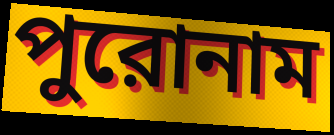
পুরোনাম